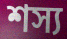
শস্য